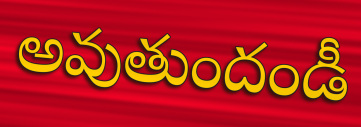
అవుతుందండీ